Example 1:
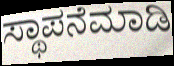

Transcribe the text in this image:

ಸ್ಥಾಪನೆಮಾಡಿ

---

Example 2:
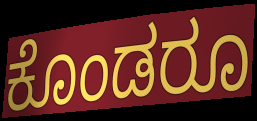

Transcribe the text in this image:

ಕೊಂಡರೂ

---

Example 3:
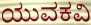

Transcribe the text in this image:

ಯುವಕವಿ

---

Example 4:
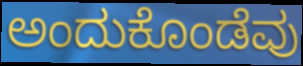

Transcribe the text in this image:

ಅಂದುಕೊಂಡೆವು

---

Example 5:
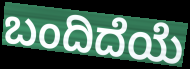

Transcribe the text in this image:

ಬಂದಿದೆಯೆ